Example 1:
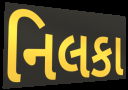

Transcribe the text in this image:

નિલકા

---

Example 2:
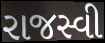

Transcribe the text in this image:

રાજસ્વી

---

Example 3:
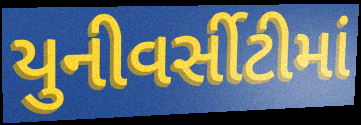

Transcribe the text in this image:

યુનીવર્સીટીમાં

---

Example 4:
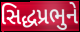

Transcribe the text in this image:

સિદ્ધપ્રભુને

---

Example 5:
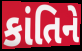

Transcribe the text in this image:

કાંતિને